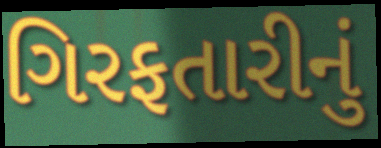
ગિરફતારીનું